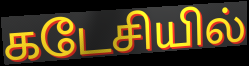
கடேசியில்